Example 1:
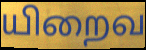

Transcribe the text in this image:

யிறைவ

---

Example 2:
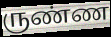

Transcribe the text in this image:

ருண்ண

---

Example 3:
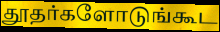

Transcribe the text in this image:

தூதர்களோடுங்கூட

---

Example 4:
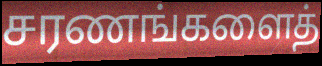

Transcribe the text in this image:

சரணங்களைத்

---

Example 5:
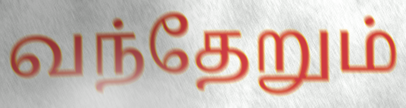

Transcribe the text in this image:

வந்தேறும்